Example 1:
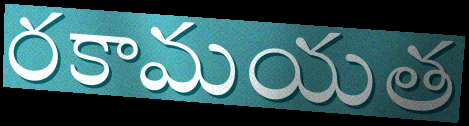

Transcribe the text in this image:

రకామయత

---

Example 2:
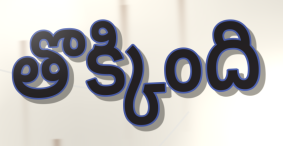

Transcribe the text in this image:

తొక్కింది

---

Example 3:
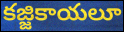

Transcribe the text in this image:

కజ్జికాయలూ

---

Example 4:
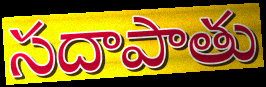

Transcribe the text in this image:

సదాపాతు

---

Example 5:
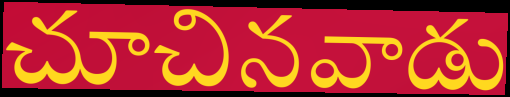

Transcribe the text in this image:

చూచినవాడు